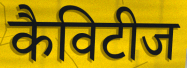
कैविटीज